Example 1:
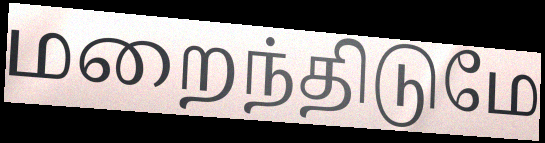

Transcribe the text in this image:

மறைந்திடுமே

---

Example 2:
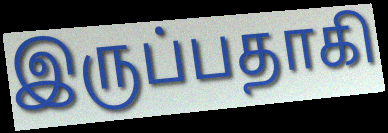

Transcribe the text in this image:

இருப்பதாகி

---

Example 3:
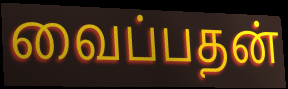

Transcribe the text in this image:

வைப்பதன்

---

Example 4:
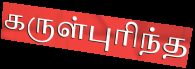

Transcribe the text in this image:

கருள்புரிந்த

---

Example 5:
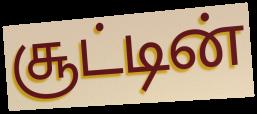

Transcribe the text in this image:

சூட்டின்